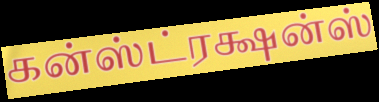
கன்ஸ்ட்ரக்ஷன்ஸ்